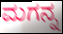
ಮಗನ್ನ